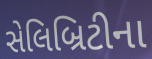
સેલિબ્રિટીના